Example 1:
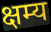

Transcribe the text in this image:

क्षम्य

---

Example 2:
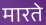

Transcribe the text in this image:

मारते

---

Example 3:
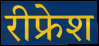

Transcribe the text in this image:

रीफ्रेश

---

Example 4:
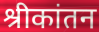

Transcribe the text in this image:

श्रीकांतन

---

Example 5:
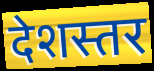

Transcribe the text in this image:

देशस्तर